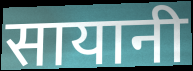
सायानी